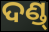
ଦଣ୍ଡ୍